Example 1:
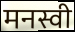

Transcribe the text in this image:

मनस्वी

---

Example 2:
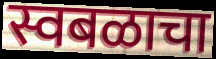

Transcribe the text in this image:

स्वबळाचा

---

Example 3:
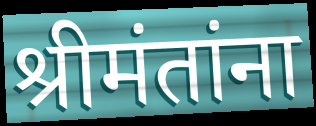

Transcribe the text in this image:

श्रीमंतांना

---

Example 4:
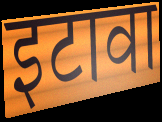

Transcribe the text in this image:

इटावा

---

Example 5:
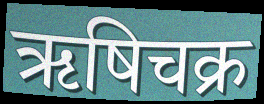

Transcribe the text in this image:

ऋषिचक्र